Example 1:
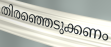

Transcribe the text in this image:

തിരഞ്ഞെടുക്കണം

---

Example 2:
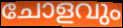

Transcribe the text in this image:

ചോളവും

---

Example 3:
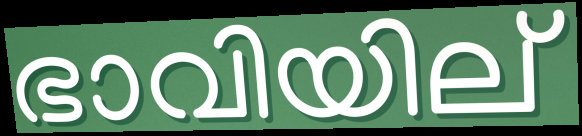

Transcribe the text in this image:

ഭാവിയില്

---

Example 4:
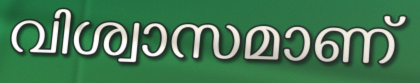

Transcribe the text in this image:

വിശ്വാസമാണ്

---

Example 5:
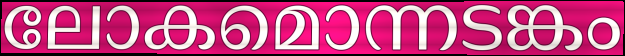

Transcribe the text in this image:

ലോകമൊന്നടങ്കം